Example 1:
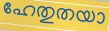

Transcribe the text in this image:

ഹേതുതയാ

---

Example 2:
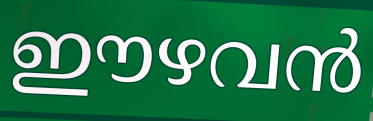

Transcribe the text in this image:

ഈഴവൻ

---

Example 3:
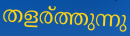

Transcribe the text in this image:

തളര്ത്തുന്നു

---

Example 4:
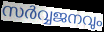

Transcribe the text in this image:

സർവ്വജനവും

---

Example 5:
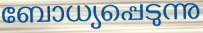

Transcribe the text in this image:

ബോധ്യപ്പെടുന്നു